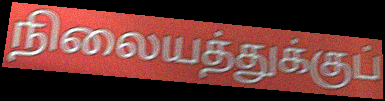
நிலையத்துக்குப்